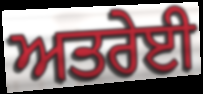
ਅਤਰੇਈ